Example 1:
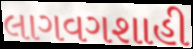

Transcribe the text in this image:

લાગવગશાહી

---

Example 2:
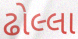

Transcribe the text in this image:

ઢોલ્લા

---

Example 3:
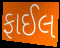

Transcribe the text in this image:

ફાઈલ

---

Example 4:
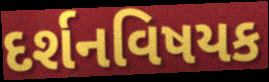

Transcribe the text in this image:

દર્શનવિષયક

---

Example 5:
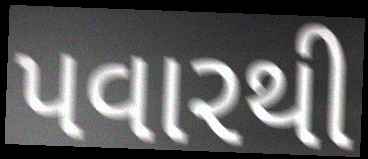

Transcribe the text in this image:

પવારથી